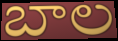
బాల